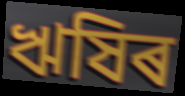
ঋষিৰ